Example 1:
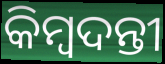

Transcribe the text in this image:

କିମ୍ଵଦନ୍ତୀ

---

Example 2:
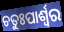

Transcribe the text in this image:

ଚତୁଃପାର୍ଶ୍ଵର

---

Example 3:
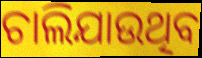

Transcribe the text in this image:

ଚାଲିଯାଉଥିବ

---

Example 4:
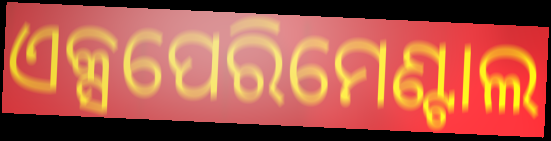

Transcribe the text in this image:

ଏକ୍ସପେରିମେଣ୍ଟାଲ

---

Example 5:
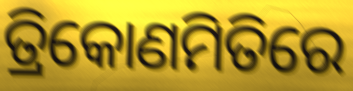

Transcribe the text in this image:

ତ୍ରିକୋଣମିତିରେ